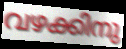
വഴക്കിനു